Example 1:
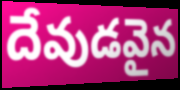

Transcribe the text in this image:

దేవుడవైన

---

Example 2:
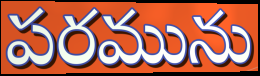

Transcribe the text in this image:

పరమును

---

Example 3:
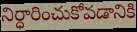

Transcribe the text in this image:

నిర్ధారించుకోవడానికి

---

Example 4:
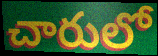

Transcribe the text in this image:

చారులో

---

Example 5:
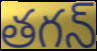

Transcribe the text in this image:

తగన్